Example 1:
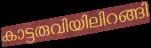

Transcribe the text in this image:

കാട്ടരുവിയിലിറങ്ങി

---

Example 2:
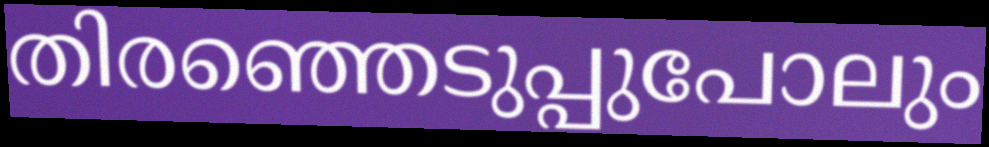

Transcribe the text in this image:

തിരഞ്ഞെടുപ്പുപോലും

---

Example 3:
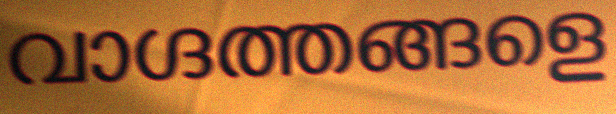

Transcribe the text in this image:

വാഗ്ദത്തങ്ങളെ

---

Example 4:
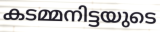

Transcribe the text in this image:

കടമ്മനിട്ടയുടെ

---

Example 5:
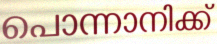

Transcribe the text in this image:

പൊന്നാനിക്ക്